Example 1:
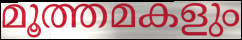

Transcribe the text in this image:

മൂത്തമകളും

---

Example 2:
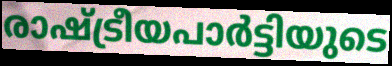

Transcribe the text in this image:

രാഷ്ട്രീയപാർട്ടിയുടെ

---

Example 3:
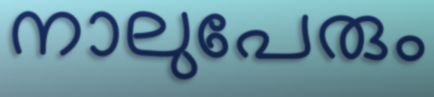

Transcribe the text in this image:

നാലുപേരും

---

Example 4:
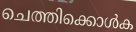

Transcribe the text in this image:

ചെത്തിക്കൊൾക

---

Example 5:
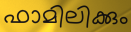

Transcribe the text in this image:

ഫാമിലിക്കും